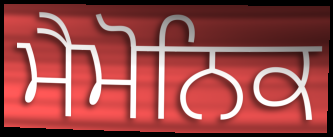
ਮੈਮੋਨਿਕ